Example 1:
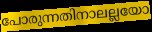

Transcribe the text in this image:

പോരുന്നതിനാലല്ലയോ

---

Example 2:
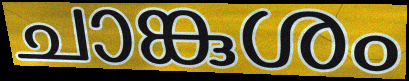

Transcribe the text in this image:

ചാങ്കുശം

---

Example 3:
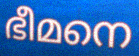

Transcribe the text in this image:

ഭീമനെ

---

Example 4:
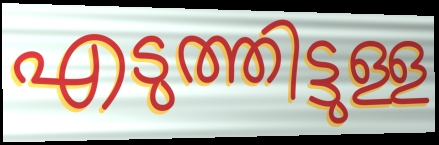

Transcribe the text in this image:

എടുത്തിട്ടുള്ള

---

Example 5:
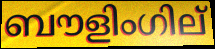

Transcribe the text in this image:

ബൗളിംഗില്